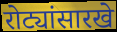
रोट्यांसारखे